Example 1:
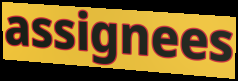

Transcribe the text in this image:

assignees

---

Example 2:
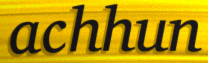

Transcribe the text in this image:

achhun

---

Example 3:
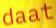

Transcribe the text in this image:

daat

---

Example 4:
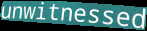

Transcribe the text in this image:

unwitnessed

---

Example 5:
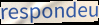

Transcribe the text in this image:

respondeu